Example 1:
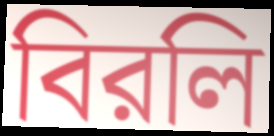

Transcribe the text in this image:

বিরলি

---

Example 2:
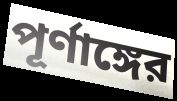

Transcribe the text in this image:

পূর্ণাঙ্গের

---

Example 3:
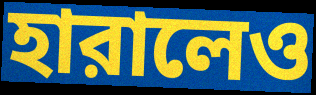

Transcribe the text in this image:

হারালেও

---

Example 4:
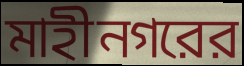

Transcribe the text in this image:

মাহীনগরের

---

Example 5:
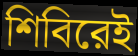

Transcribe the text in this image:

শিবিরেই